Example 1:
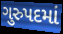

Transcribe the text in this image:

ગુરુપદમાં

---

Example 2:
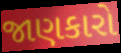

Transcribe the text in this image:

જાણકારો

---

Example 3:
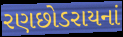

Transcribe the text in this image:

રણછોડરાયનાં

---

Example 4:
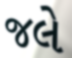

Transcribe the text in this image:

જલે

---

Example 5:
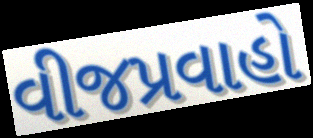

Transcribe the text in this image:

વીજપ્રવાહો